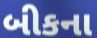
બીકના